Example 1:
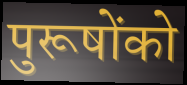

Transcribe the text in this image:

पुरूषोंको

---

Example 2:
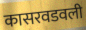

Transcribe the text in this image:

कासरवडवली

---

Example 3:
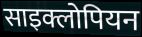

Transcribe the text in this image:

साइक्लोपियन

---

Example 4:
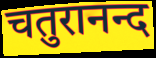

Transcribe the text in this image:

चतुरानन्द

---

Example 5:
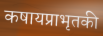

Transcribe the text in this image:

कषायप्राभृतकी